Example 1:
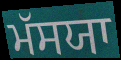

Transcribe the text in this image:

ਮੱਸਯਾ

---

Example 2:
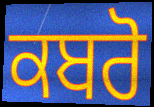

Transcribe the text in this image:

ਕਬਰੋ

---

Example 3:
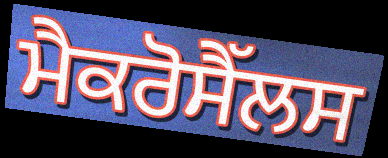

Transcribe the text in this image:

ਮੈਕਰੋਸੈੱਲਸ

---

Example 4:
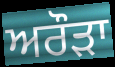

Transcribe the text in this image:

ਅਰੌੜਾ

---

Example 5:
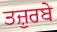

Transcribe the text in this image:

ਤਜ਼ੁਰਬੇ